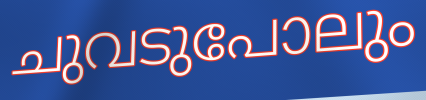
ചുവടുപോലും